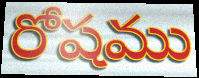
రోషము